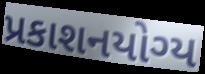
પ્રકાશનયોગ્ય